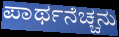
ಪಾರ್ಥನೆಚ್ಚನು